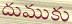
దుముకు